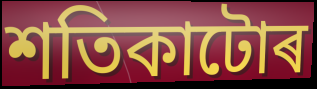
শতিকাটোৰ